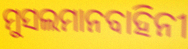
ମୁସଲମାନବାହିନୀ